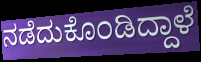
ನಡೆದುಕೊಂಡಿದ್ದಾಳೆ